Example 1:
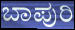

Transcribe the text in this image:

ಬಾಪುರಿ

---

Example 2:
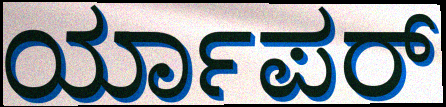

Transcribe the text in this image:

ರ್ಯಾಪರ್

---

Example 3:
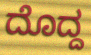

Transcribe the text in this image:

ದೊದ್ದ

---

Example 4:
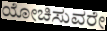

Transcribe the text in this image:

ಯೋಚಿಸುವರೇ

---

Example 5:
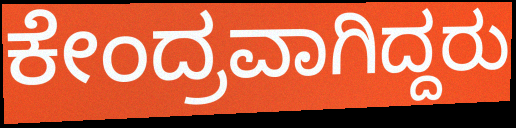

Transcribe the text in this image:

ಕೇಂದ್ರವಾಗಿದ್ದರು